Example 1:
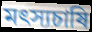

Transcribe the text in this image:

মৎস্যচাষি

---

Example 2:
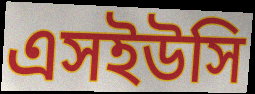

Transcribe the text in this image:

এসইউসি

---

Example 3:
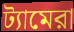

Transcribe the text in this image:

ট্যামেরা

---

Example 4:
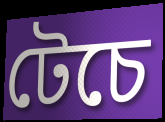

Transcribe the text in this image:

টেচে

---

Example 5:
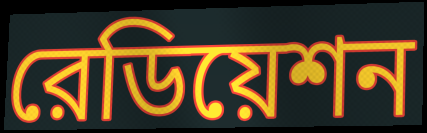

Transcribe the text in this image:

রেডিয়েশন